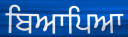
ਬਿਆਪਿਆ